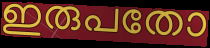
ഇരുപതോ